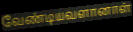
வேண்டியவளானாள்